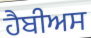
ਹੈਬੀਅਸ